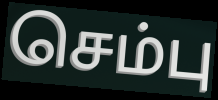
செம்பு